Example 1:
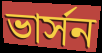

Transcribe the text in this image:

ভার্সন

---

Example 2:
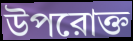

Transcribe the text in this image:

উপরোক্ত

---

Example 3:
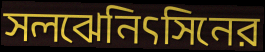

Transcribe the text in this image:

সলঝেনিৎসিনের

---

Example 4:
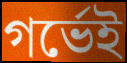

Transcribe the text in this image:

গর্ভেই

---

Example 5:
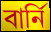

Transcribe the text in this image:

বার্নি